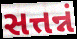
સત્તન્નં